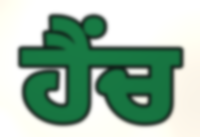
ਹੈਂਚ